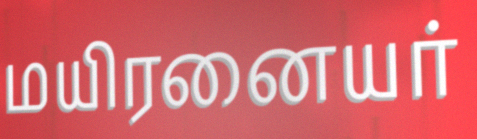
மயிரனையர்